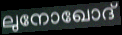
ലുനോഖോദ്